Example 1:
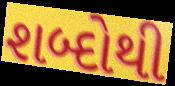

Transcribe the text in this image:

શબ્દોથી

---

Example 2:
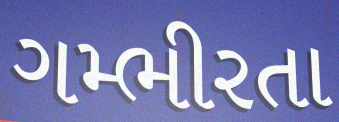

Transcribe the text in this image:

ગમ્ભીરતા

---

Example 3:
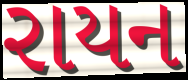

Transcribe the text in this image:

રાયન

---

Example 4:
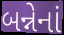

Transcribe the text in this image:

બન્નેનાં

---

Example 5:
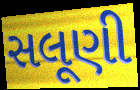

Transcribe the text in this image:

સલૂણી